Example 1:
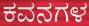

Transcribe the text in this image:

ಕವನಗಳ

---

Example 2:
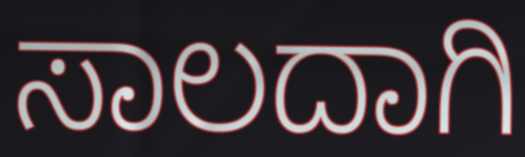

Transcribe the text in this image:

ಸಾಲದಾಗಿ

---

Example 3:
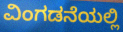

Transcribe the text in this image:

ವಿಂಗಡನೆಯಲ್ಲಿ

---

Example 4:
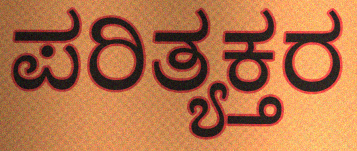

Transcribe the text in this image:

ಪರಿತ್ಯಕ್ತರ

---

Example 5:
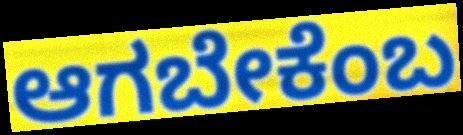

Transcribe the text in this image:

ಆಗಬೇಕೆಂಬ